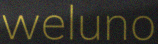
weluno